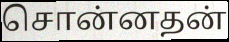
சொன்னதன்